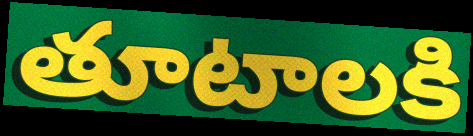
తూటాలకి